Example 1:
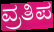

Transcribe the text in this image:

ವ್ರತಿಪ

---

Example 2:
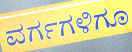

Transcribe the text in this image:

ವರ್ಗಗಳಿಗೂ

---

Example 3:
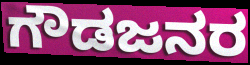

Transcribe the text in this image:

ಗೌಡಜನರ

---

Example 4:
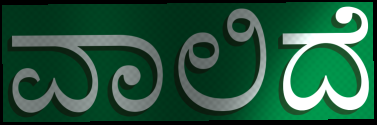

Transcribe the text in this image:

ವಾಲಿದೆ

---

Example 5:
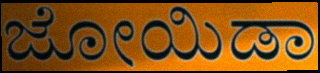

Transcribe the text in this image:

ಜೋಯಿಡಾ